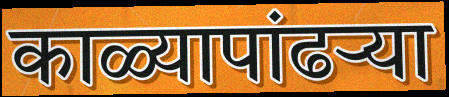
काळ्यापांढर्‍या